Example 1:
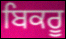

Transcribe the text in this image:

ਬਿਕਰੂ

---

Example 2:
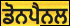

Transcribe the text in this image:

ਡੋਨਪੈਨਲ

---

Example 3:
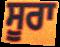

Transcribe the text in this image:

ਸੂਰਾ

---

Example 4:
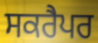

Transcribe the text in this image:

ਸਕਰੈਪਰ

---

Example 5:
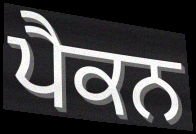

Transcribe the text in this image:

ਪੈਕਨ